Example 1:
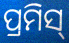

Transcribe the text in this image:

ପ୍ରମିସ୍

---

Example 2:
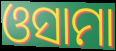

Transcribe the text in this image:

ଓସାମା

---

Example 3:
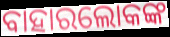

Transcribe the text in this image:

ବାହାରଲୋକଙ୍କ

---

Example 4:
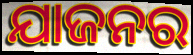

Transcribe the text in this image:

ଯାଜନର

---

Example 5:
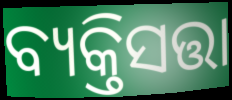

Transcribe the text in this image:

ବ୍ୟକ୍ତିସତ୍ତା